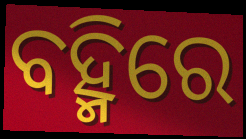
ବହ୍ମିରେ